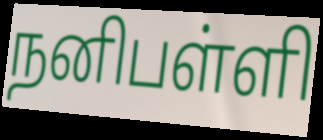
நனிபள்ளி